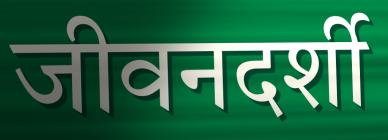
जीवनदर्शी